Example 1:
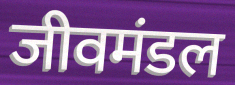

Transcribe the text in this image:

जीवमंडल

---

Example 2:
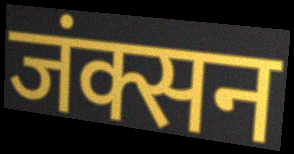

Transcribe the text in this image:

जंक्सन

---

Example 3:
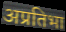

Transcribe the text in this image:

अप्रतिभा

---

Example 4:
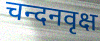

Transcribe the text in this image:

चन्दनवृक्ष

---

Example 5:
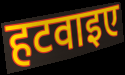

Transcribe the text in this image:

हटवाइए